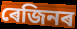
ৰেজিনৰ